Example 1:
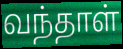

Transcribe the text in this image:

வந்தாள்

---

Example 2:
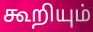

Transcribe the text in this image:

கூறியும்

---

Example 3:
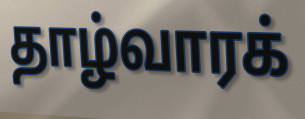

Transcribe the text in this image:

தாழ்வாரக்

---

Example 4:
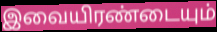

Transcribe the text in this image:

இவையிரண்டையும்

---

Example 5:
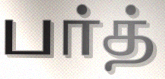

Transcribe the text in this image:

பர்த்